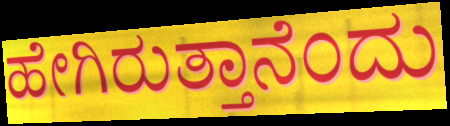
ಹೇಗಿರುತ್ತಾನೆಂದು